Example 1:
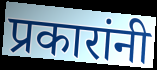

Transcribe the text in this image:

प्रकारांनी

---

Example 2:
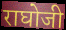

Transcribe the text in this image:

राघोजी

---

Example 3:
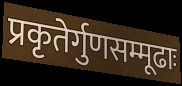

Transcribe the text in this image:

प्रकृतेर्गुणसम्मूढाः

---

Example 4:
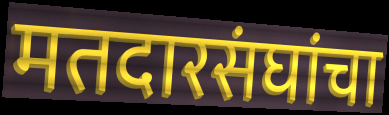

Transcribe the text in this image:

मतदारसंघांचा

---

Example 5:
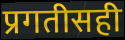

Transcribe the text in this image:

प्रगतीसही